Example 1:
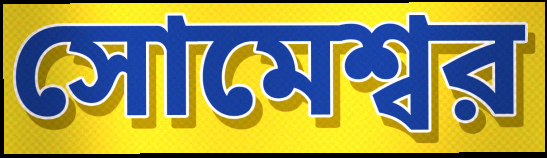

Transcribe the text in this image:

সোমেশ্বর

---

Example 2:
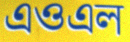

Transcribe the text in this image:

এওএল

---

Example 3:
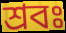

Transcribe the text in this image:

শ্রবঃ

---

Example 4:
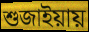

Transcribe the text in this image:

শুজাইয়ায়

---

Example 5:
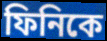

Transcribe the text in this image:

ফিনিকে